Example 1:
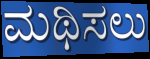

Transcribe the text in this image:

ಮಥಿಸಲು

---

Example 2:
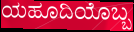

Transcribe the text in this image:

ಯಹೂದಿಯೊಬ್ಬ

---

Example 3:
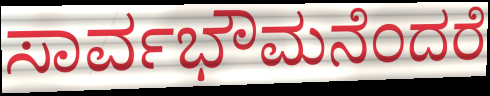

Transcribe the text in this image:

ಸಾರ್ವಭೌಮನೆಂದರೆ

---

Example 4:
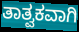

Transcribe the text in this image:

ತಾತ್ವಕವಾಗಿ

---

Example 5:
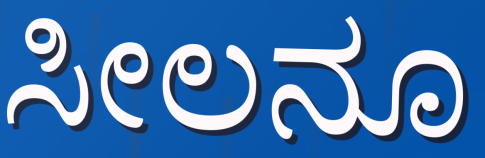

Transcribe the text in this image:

ಸೀಲನೂ